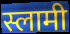
स्लामी